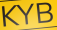
KYB